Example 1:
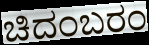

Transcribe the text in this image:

ಚಿದಂಬರಂ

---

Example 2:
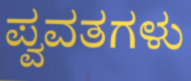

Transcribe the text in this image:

ಪ್ವವತಗಳು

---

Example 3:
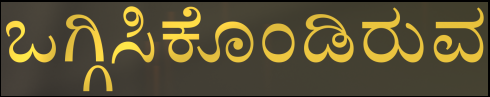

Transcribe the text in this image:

ಒಗ್ಗಿಸಿಕೊಂಡಿರುವ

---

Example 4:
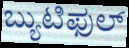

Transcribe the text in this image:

ಬ್ಯುಟಿಫುಲ್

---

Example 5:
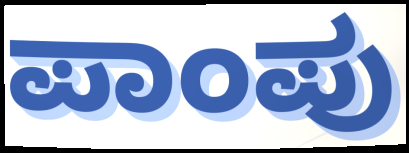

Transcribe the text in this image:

ಪಾಂಪು